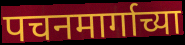
पचनमार्गाच्या